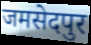
जमसेदपुर